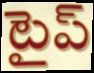
టైప్